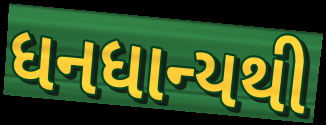
ધનધાન્યથી